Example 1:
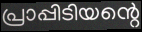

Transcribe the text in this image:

പ്രാപ്പിടിയന്റെ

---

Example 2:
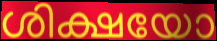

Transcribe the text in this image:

ശിക്ഷയോ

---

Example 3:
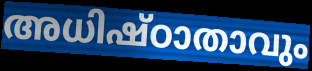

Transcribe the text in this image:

അധിഷ്ഠാതാവും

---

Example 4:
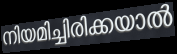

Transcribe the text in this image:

നിയമിച്ചിരിക്കയാൽ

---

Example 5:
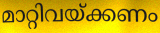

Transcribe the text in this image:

മാറ്റിവയ്ക്കണം